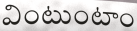
వింటుంటాం